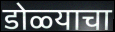
डोळ्याचा